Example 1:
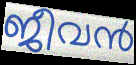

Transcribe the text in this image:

ജീവൻ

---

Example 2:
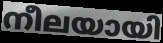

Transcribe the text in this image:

നീലയായി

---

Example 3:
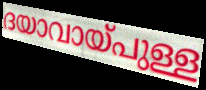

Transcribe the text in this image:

ദയാവായ്പുള്ള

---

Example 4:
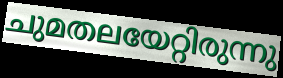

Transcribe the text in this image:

ചുമതലയേറ്റിരുന്നു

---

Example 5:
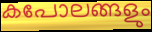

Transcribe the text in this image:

കപോലങ്ങളും